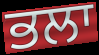
ਭਲਾ